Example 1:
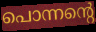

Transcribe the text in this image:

പൊന്നന്റെ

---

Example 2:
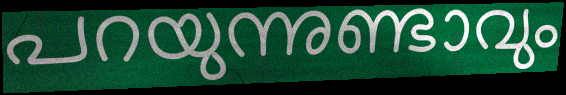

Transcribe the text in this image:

പറയുന്നുണ്ടാവും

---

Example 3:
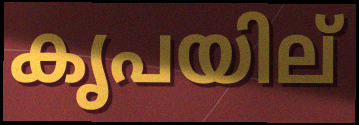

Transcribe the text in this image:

കൃപയില്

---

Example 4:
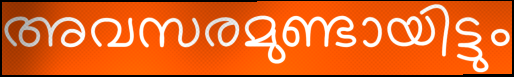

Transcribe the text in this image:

അവസരമുണ്ടായിട്ടും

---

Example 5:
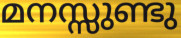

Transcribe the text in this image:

മനസ്സുണ്ടു